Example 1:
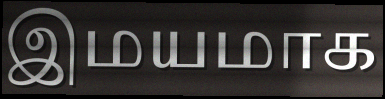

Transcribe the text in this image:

இமயமாக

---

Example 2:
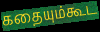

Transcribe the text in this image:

கதையும்கூட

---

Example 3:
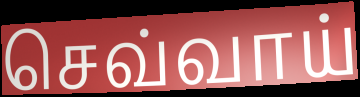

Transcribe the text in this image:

செவ்வாய்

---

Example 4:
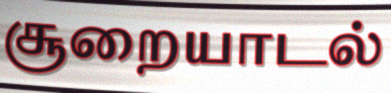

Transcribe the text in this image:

சூறையாடல்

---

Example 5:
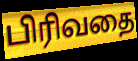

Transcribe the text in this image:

பிரிவதை